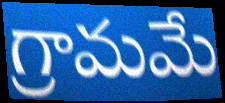
గ్రామమే